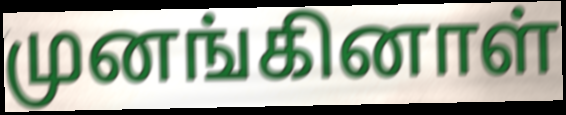
முனங்கினாள்